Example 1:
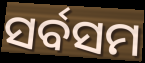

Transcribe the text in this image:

ସର୍ବସମ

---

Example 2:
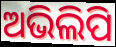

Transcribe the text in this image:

ଅଭିଲିପି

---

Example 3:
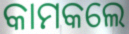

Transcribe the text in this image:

କାମକଲେ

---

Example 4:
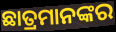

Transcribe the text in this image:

ଛାତ୍ରମାନଙ୍କର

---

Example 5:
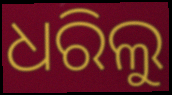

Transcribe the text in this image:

ଧରିଲୁ